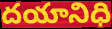
దయానిధి